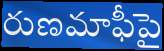
రుణమాఫీపై